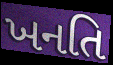
ખનતિ